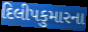
દિલીપકુમારના